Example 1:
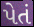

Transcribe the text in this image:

પેતં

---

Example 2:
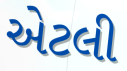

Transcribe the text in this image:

એટલી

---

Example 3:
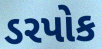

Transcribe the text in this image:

ડરપોક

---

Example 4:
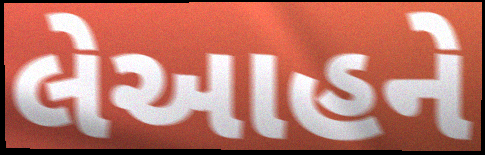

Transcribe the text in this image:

લેઆહને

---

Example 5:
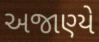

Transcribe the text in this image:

અજાણ્યે